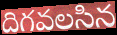
దిగవలసిన